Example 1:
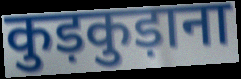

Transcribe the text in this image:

कुड़कुड़ाना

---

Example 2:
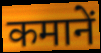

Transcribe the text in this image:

कमानें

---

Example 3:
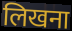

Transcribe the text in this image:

लिखना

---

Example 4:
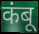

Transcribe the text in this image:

कंबू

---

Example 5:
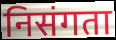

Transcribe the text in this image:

निसंगता